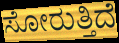
ಸೋರುತ್ತಿದೆ